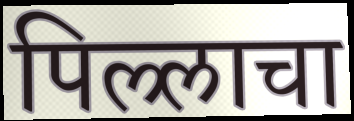
पिल्लाचा